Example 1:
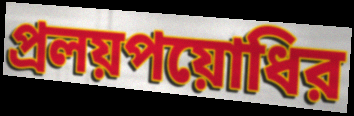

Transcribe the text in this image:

প্রলয়পয়োধির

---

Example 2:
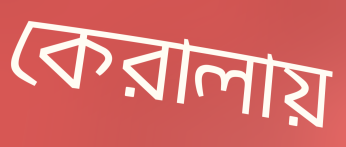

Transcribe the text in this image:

কেরালায়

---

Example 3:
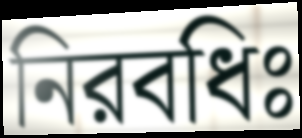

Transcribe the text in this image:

নিরবধিঃ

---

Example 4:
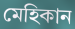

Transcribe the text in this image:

মেহিকান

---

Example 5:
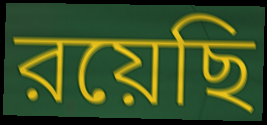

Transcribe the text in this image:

রয়েছি